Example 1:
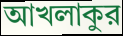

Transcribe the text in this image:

আখলাকুর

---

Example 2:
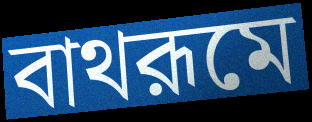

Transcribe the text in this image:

বাথরূমে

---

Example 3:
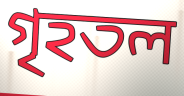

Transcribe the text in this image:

গৃহতল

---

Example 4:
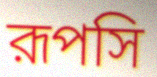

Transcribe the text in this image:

রূপসি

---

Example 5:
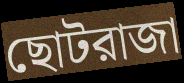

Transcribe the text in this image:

ছোটরাজা